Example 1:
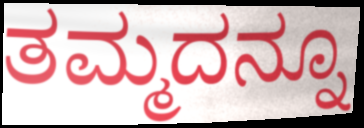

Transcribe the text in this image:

ತಮ್ಮದನ್ನೂ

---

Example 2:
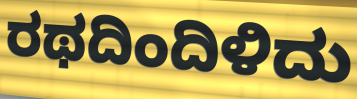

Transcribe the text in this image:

ರಥದಿಂದಿಳಿದು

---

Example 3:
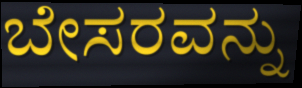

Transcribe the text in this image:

ಬೇಸರವನ್ನು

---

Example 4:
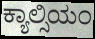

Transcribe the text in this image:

ಕ್ಯಾಲ್ಸಿಯಂ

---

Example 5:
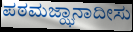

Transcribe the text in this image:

ಪಠಮಜ್ಝಾನಾದೀಸು